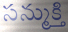
సన్ముక్తి